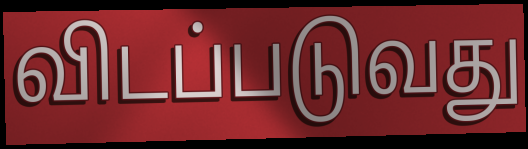
விடப்படுவது